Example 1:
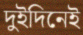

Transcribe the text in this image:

দুইদিনেই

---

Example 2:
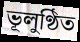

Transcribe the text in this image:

ভূলুণ্ঠিত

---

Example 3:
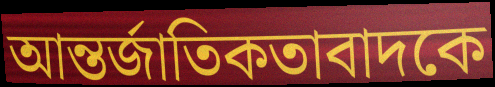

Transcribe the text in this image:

আন্তর্জাতিকতাবাদকে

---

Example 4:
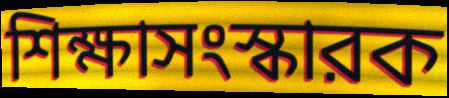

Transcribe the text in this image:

শিক্ষাসংস্কারক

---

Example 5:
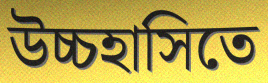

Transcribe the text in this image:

উচ্চহাসিতে